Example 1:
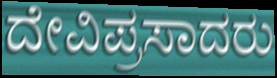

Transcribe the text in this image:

ದೇವಿಪ್ರಸಾದರು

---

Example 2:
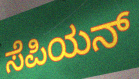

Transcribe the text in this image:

ಸೆಪಿಯನ್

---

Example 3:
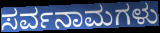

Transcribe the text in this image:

ಸರ್ವನಾಮಗಳು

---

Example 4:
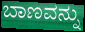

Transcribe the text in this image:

ಬಾಣವನ್ನು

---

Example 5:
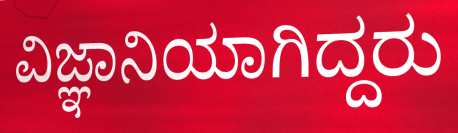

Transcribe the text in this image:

ವಿಜ್ಞಾನಿಯಾಗಿದ್ದರು